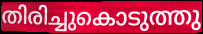
തിരിച്ചുകൊടുത്തു